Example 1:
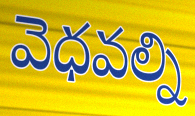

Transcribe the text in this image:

వెధవల్ని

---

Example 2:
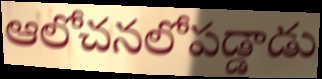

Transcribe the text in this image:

ఆలోచనలోపడ్డాడు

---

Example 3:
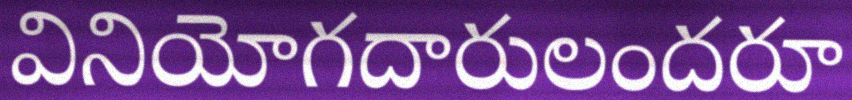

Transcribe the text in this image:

వినియోగదారులందరూ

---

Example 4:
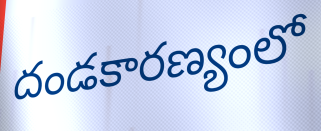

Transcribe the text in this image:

దండకారణ్యంలో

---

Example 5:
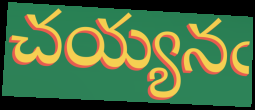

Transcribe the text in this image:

చయ్యనఁ